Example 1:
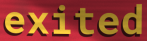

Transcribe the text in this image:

exited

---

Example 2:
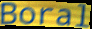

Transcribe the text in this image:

Boral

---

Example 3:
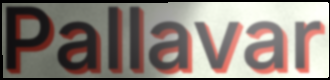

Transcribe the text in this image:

Pallavar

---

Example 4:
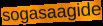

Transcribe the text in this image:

sogasaagide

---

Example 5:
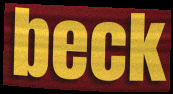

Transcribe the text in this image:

beck